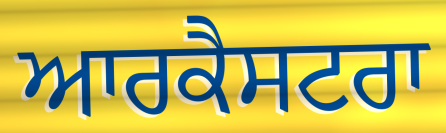
ਆਰਕੈਸਟਰਾ